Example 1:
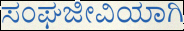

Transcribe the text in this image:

ಸಂಘಜೀವಿಯಾಗಿ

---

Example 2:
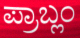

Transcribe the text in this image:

ಪ್ರಾಬ್ಲಂ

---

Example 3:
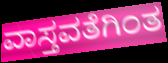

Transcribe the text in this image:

ವಾಸ್ತವತೆಗಿಂತ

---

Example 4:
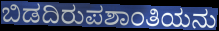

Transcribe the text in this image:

ಬಿಡದಿರುಪಶಾಂತಿಯನು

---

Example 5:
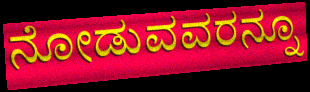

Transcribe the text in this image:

ನೋಡುವವರನ್ನೂ